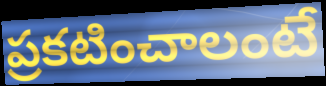
ప్రకటించాలంటే